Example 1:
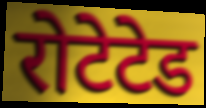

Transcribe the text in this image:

रोटेटेड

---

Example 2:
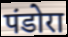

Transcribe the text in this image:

पंडोरा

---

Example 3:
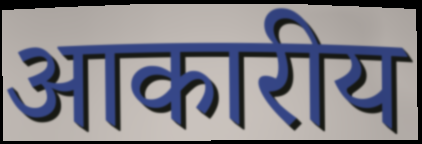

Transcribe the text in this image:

आकारीय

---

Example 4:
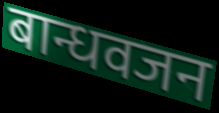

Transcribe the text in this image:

बान्धवजन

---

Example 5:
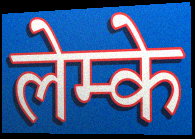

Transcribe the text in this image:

लेम्के